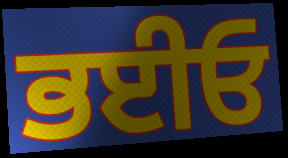
ਭਈਓ